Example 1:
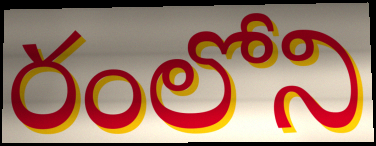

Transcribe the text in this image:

రంలోని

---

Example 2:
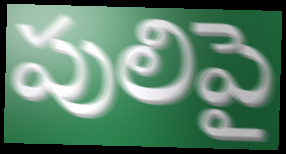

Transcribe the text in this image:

పులిపై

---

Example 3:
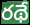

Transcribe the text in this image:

రథే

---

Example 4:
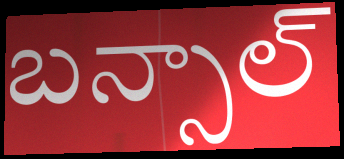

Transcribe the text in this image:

బన్సాల్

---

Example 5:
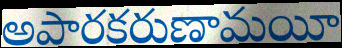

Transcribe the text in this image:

అపారకరుణామయీ